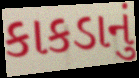
કાકડાનું